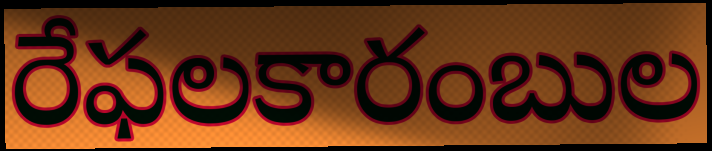
రేఫలకారంబుల